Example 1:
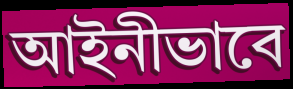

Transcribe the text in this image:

আইনীভাবে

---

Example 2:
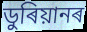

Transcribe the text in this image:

ডুৰিয়ানৰ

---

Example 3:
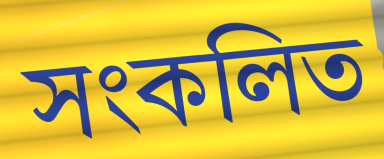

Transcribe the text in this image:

সংকলিত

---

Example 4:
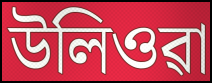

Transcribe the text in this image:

উলিওৱা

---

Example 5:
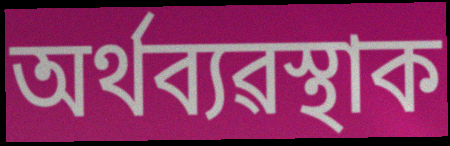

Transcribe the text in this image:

অৰ্থব্যৱস্থাক